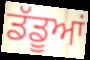
ਡੱਡੂਆਂ